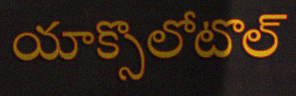
యాక్సొలోటొల్